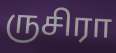
ருசிரா